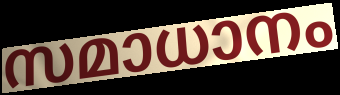
സമാധാനം